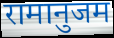
रामानुजम